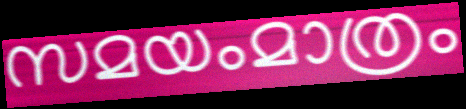
സമയംമാത്രം